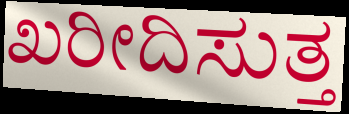
ಖರೀದಿಸುತ್ತ